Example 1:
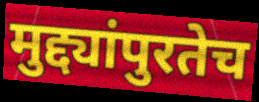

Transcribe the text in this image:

मुद्द्यांपुरतेच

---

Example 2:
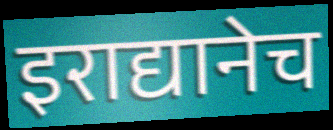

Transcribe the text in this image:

इराद्यानेच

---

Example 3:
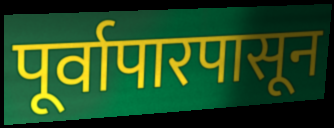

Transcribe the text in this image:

पूर्वापारपासून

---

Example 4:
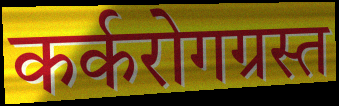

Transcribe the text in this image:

कर्करोगग्रस्त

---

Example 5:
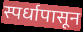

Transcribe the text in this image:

स्पर्धापासून